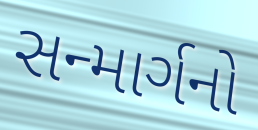
સન્માર્ગનો